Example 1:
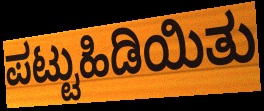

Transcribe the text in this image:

ಪಟ್ಟುಹಿಡಿಯಿತು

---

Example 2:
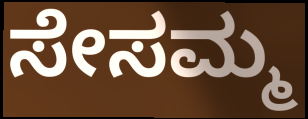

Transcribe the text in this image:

ಸೇಸಮ್ಮ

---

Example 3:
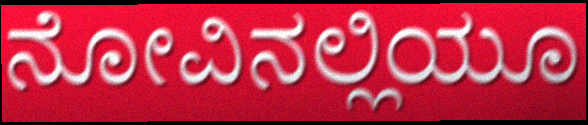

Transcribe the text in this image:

ನೋವಿನಲ್ಲಿಯೂ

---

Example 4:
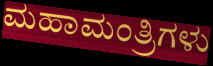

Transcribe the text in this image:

ಮಹಾಮಂತ್ರಿಗಳು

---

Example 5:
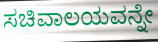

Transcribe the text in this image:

ಸಚಿವಾಲಯವನ್ನೇ